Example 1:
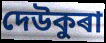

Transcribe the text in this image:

দেউকুৰা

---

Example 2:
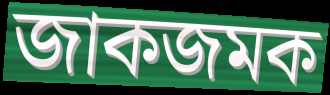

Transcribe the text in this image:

জাকজমক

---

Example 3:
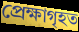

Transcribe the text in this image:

প্ৰেক্ষাগৃহত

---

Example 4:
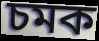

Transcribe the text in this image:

চমক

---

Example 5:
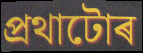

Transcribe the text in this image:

প্ৰথাটোৰ